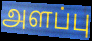
அளப்பு